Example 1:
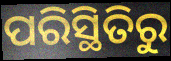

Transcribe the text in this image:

ପରିସ୍ଥିତିରୁ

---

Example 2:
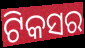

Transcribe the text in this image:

ଟିକସର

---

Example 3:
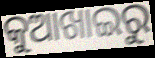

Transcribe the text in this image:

କୁଆଖାଇରୁ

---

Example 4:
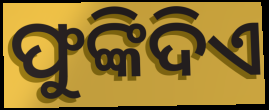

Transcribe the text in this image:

ଫୁଙ୍କିଦିଏ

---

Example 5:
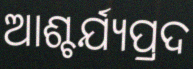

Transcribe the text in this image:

ଆଶ୍ଚର୍ଯ୍ୟପ୍ରଦ